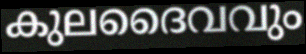
കുലദൈവവും